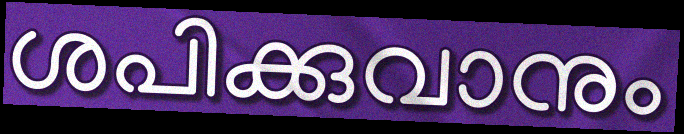
ശപിക്കുവാനും